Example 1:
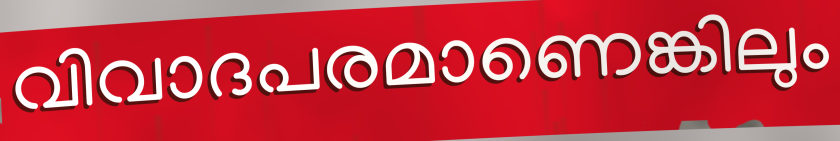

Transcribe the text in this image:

വിവാദപരമാണെങ്കിലും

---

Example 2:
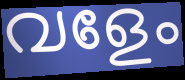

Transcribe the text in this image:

വളേം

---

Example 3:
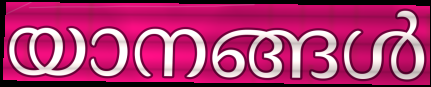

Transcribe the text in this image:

യാനങ്ങൾ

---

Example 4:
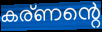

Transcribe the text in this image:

കര്ണന്റെ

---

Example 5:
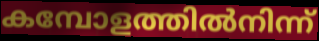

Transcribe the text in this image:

കമ്പോളത്തിൽനിന്ന്